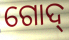
ଗୋଦ୍